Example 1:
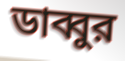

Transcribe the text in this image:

ডাব্বুর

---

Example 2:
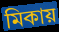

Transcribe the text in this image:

মিকায়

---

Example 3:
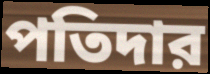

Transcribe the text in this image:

পতিদার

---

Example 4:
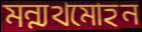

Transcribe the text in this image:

মন্মথমোহন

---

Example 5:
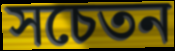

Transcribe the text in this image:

সচেতন